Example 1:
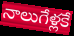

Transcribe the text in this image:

నాలుగేళ్లకే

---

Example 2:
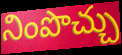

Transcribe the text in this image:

నింపొచ్చు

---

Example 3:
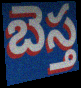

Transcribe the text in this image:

బెస్త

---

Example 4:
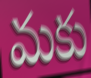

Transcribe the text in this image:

మకు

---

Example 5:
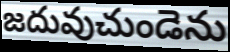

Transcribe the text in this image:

జదువుచుండెను